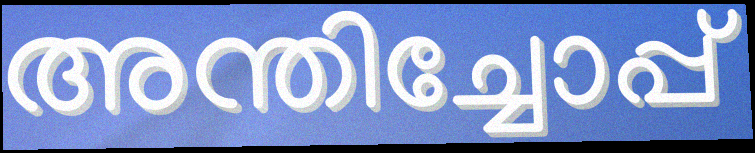
അന്തിച്ചോപ്പ്